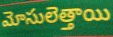
మోసులెత్తాయి